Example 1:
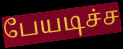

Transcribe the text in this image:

பேயடிச்ச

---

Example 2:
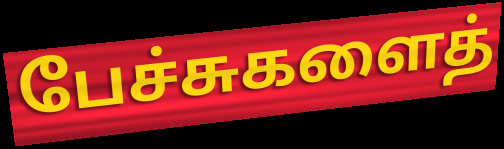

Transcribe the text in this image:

பேச்சுகளைத்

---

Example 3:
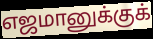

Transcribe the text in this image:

எஜமானுக்குக்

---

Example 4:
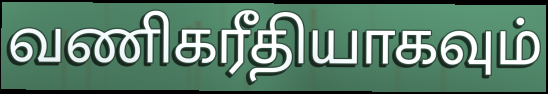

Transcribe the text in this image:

வணிகரீதியாகவும்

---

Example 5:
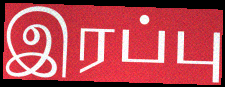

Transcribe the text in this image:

இரப்பு